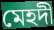
মেহদী